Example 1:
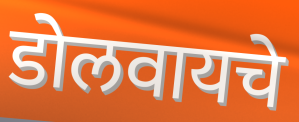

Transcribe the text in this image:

डोलवायचे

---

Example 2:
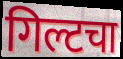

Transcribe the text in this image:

गिल्टचा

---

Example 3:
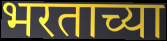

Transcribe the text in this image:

भरताच्या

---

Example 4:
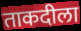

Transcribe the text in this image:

ताकदीला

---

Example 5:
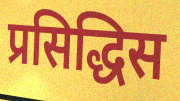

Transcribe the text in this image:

प्रसिद्धिस